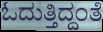
ಓದುತ್ತಿದ್ದಂತೆ